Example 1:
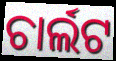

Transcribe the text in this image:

ଚାର୍ଲଟ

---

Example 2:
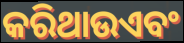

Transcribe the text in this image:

କରିଥାଉଏବଂ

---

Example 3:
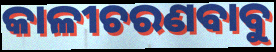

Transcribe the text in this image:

କାଳୀଚରଣବାବୁ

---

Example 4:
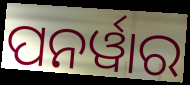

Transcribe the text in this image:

ପନର୍ୱାର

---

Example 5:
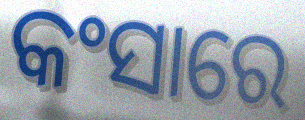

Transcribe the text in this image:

କଂସାରେ